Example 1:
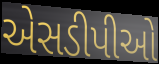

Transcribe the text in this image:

એસડીપીઓ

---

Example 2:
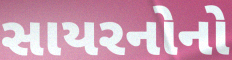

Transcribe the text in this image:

સાયરનોનો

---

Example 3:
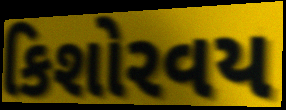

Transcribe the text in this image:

કિશોરવય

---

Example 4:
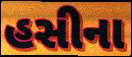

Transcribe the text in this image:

હસીના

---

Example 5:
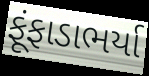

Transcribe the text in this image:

ફૂંફાડાભર્યા